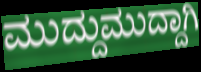
ಮುದ್ದುಮುದ್ದಾಗಿ